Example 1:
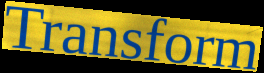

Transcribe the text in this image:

Transform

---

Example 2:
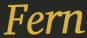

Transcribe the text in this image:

Fern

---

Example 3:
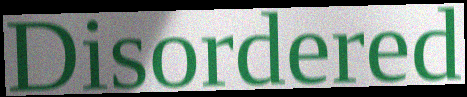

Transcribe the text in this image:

Disordered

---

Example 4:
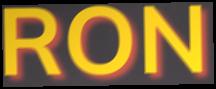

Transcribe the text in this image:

RON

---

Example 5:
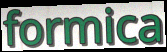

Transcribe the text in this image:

formica